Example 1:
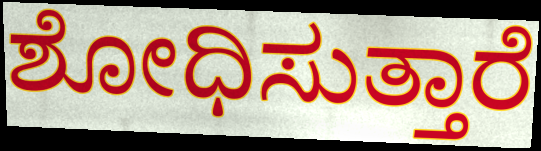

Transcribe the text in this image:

ಶೋಧಿಸುತ್ತಾರೆ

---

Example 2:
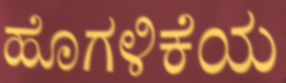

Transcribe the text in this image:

ಹೊಗಳಿಕೆಯ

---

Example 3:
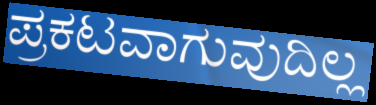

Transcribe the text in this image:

ಪ್ರಕಟವಾಗುವುದಿಲ್ಲ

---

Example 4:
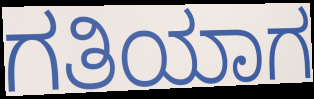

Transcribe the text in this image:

ಗತಿಯಾಗ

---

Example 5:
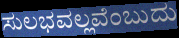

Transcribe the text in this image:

ಸುಲಭವಲ್ಲವೆಂಬುದು